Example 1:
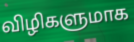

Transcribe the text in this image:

விழிகளுமாக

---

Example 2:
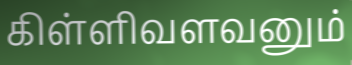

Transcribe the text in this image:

கிள்ளிவளவனும்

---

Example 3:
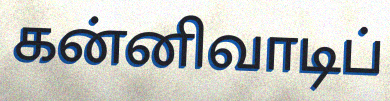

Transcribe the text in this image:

கன்னிவாடிப்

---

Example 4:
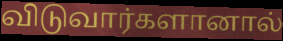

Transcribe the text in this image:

விடுவார்களானால்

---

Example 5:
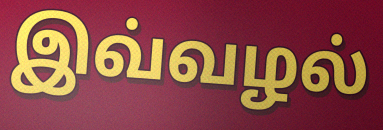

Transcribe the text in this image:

இவ்வழல்